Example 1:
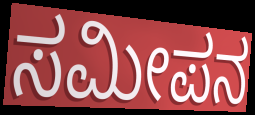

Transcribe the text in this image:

ಸಮೀಪನ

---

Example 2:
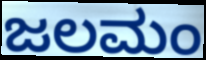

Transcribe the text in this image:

ಜಲಮಂ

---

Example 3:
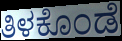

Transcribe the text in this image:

ತಿಳಕೊಂಡೆ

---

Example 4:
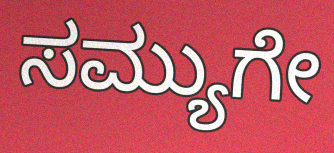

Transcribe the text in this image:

ಸಮ್ಯುಗೇ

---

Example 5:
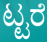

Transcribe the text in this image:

ಟ್ಟರೆ